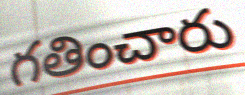
గతించారు